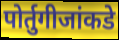
पोर्तुगीजांकडे